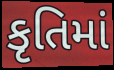
કૃતિમાં